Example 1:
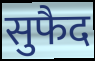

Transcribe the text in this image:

सुफैद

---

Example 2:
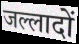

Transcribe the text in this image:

जल्लादों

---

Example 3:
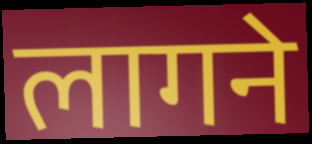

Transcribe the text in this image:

लागने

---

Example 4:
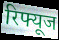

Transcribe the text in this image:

रिफ्यूज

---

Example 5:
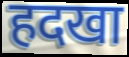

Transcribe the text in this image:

हदखा